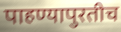
पाहण्यापुरतीच